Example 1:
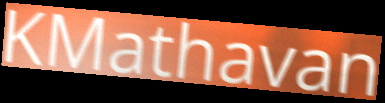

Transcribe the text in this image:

KMathavan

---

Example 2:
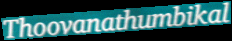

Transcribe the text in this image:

Thoovanathumbikal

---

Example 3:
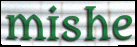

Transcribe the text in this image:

mishe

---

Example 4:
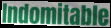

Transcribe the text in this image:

Indomitable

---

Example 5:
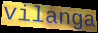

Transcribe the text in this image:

vilanga